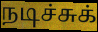
நடிச்சுக்